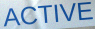
ACTIVE